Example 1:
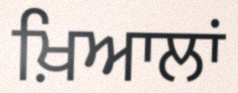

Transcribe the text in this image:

ਖ਼ਿਆਲਾਂ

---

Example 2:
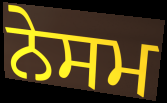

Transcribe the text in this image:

ਨੇਸਮ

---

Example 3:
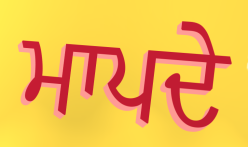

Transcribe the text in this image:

ਮਾਪਦੇ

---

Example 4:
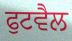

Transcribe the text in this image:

ਫੁਟਵੈਲ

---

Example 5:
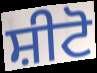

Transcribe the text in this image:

ਸ਼ੀਟੋ